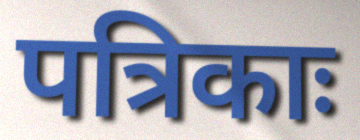
पत्रिकाः